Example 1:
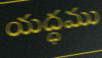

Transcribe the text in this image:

యద్ధము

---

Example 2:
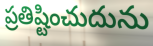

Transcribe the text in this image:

ప్రతిష్టించుదును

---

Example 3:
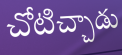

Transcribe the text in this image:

చోటిచ్చాడు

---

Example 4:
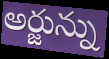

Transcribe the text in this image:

అర్జున్ను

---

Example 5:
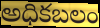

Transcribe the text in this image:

అధికబలం